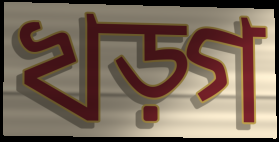
খড়্গ